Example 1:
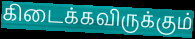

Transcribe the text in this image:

கிடைக்கவிருக்கும்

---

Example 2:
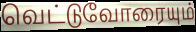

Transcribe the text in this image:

வெட்டுவோரையும்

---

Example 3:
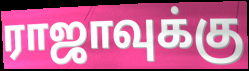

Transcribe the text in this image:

ராஜாவுக்கு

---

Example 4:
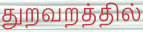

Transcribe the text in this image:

துறவறத்தில்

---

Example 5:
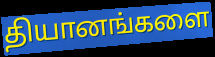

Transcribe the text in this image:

தியானங்களை